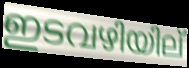
ഇടവഴിയില്